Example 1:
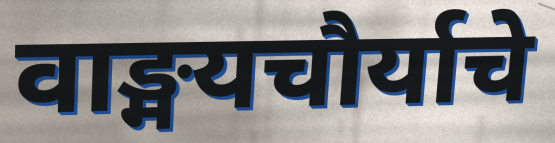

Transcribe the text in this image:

वाङ्मयचौर्याचे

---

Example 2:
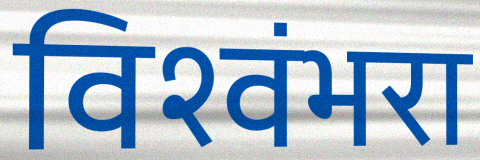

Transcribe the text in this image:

विश्वंभरा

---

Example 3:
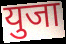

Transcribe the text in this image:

युजा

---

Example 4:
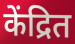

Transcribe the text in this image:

केंद्रित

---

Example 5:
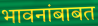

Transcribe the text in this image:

भावनांबाबत